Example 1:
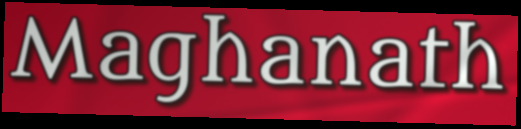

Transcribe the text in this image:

Maghanath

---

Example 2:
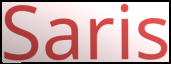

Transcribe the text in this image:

Saris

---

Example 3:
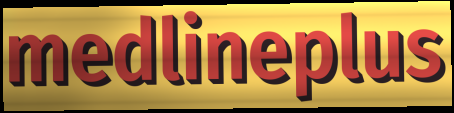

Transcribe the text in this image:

medlineplus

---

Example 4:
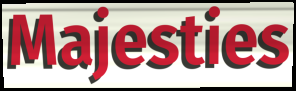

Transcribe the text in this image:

Majesties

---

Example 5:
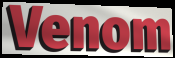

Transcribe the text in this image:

Venom